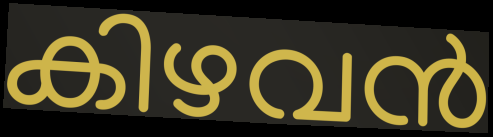
കിഴവൻ